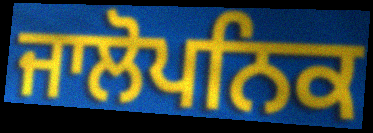
ਜਾਲੋਪਨਿਕ